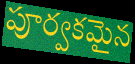
పూర్వకమైన